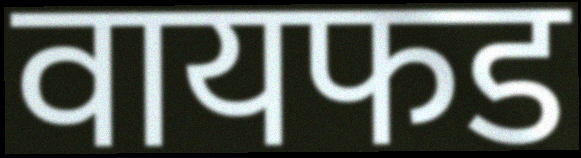
वायफड